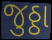
જુઠ્ઠા